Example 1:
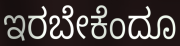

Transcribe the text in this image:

ಇರಬೇಕೆಂದೂ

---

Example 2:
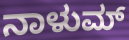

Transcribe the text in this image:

ನಾಳುಮ್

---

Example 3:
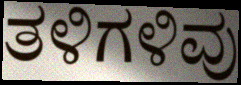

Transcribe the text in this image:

ತಳಿಗಳಿವು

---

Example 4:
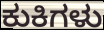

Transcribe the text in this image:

ಕುಕಿಗಳು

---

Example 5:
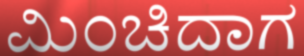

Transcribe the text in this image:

ಮಿಂಚಿದಾಗ